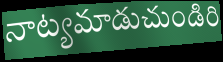
నాట్యమాడుచుండిరి